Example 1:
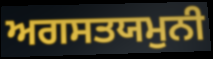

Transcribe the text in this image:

ਅਗਸਤਯਮੁਨੀ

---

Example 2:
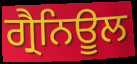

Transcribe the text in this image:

ਗ੍ਰੈਨਿਊਲ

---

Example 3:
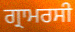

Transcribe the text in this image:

ਗ੍ਰਾਮਰਸੀ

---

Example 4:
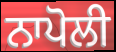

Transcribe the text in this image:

ਨਾਪੋਲੀ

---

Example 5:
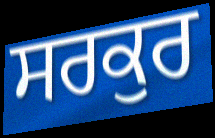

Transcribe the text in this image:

ਸਰਕੁਰ